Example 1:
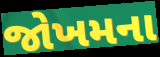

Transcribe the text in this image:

જોખમના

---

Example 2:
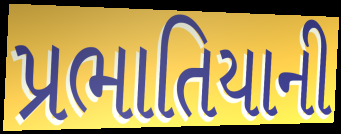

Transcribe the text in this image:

પ્રભાતિયાની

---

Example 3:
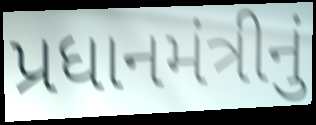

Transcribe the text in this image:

પ્રધાનમંત્રીનું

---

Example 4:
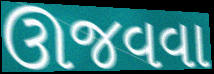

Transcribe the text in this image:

ઊજવવા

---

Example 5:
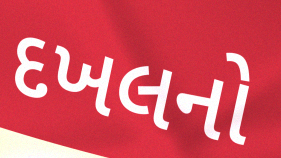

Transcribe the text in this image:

દખલનો